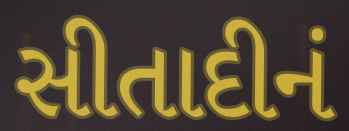
સીતાદીનં